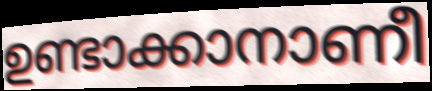
ഉണ്ടാക്കാനാണീ